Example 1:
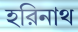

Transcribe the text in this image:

হরিনাথ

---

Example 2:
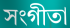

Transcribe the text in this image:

সংগীতা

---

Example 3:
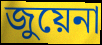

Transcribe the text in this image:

জুয়েনা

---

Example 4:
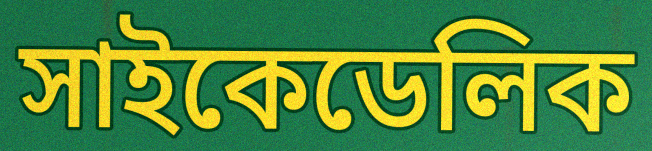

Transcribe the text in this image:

সাইকেডেলিক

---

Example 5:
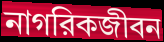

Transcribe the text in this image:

নাগরিকজীবন